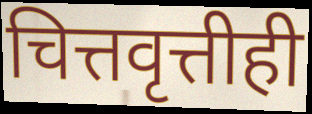
चित्तवृत्तीही